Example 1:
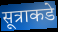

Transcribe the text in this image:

सूत्राकडे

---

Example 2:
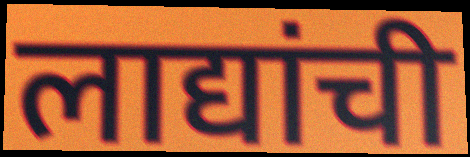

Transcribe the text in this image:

लाद्यांची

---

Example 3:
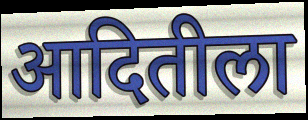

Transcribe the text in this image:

आदितीला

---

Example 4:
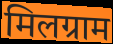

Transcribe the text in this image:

मिलग्राम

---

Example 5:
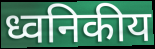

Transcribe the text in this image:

ध्वनिकीय